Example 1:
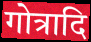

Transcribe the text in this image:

गोत्रादि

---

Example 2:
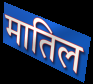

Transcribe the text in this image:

मातिल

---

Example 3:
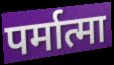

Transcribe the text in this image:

पर्मात्मा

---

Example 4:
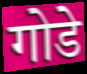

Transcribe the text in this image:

गोडे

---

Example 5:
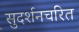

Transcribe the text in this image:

सुदर्शनचरित